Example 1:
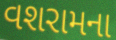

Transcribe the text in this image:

વશરામના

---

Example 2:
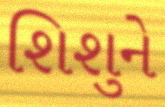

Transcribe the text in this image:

શિશુને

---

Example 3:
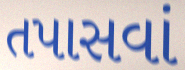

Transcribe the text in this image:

તપાસવાં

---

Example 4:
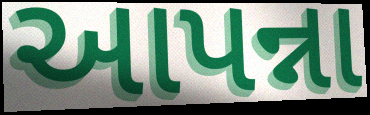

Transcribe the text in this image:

આપન્ના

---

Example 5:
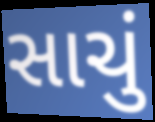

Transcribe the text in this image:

સાચું